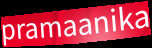
pramaanika